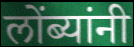
लोंब्यांनी